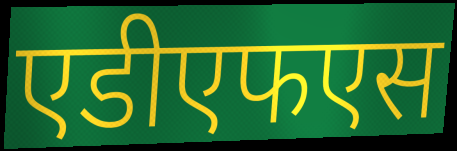
एडीएफएस